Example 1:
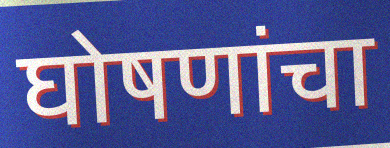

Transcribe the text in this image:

घोषणांचा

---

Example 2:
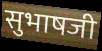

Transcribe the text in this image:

सुभाषजी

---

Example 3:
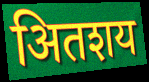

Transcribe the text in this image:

अितशय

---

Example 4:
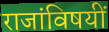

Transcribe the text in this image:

राजांविषयीं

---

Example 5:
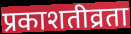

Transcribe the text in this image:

प्रकाशतीव्रता